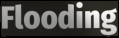
Flooding